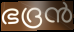
ഭദ്രൻ